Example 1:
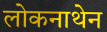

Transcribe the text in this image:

लोकनाथेन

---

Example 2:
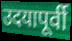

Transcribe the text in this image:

उदयापूर्वी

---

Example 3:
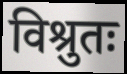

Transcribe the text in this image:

विश्रुतः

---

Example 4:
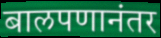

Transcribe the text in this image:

बालपणानंतर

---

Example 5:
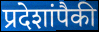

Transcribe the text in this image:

प्रदेशांपैकी